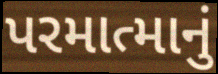
પરમાત્માનું